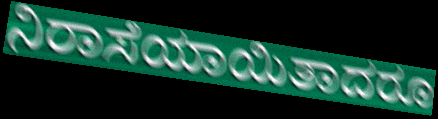
ನಿರಾಸೆಯಾಯಿತಾದರೂ